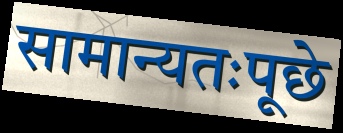
सामान्यतःपूछे